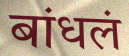
बांधलं